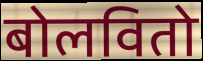
बोलवितो